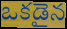
ఒకడైన